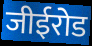
जीईरोड